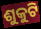
ଶୁକୁଟି